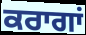
ਕਰਾਗਾਂ